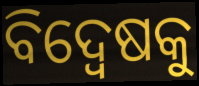
ବିଦ୍ବେଷକୁ